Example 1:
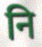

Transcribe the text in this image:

नि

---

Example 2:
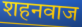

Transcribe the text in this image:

शहनवाज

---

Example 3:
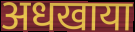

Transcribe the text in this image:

अधखाया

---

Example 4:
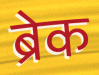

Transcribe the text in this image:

ब्रेक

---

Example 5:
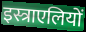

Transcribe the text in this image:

इस्त्राएलियों